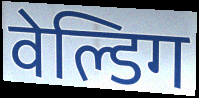
वेल्डिग